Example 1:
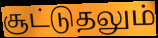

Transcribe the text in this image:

சூட்டுதலும்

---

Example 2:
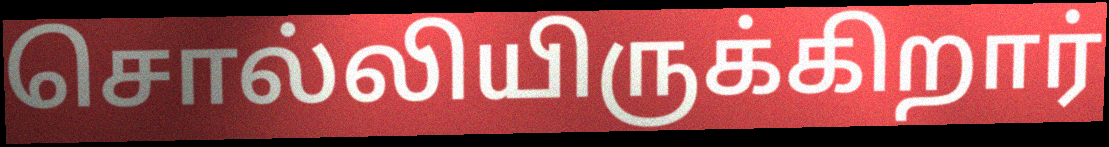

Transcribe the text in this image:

சொல்லியிருக்கிறார்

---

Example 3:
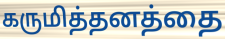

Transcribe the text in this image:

கருமித்தனத்தை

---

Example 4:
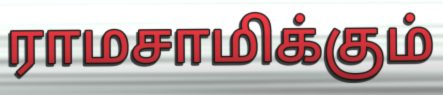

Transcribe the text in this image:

ராமசாமிக்கும்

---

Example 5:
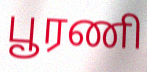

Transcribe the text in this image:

பூரணி